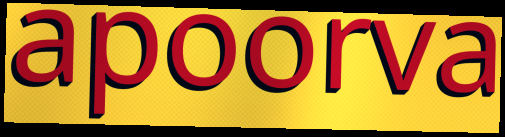
apoorva